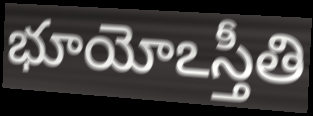
భూయోఽస్తీతి